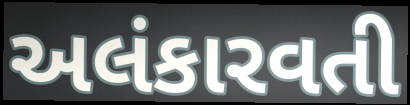
અલંકારવતી